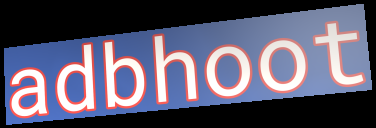
adbhoot